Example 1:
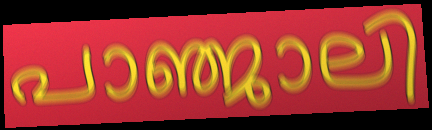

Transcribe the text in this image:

പാഞ്ജാലി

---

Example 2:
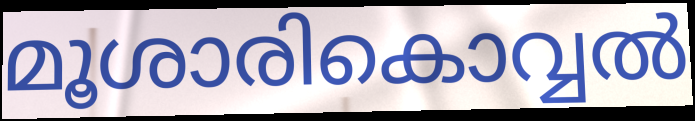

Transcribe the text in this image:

മൂശാരികൊവ്വൽ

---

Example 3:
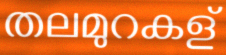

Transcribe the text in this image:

തലമുറകള്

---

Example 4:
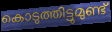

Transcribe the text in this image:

കൊടുത്തിട്ടുമുണ്ട്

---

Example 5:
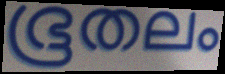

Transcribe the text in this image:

ഭൂതലം